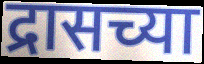
द्रासच्या